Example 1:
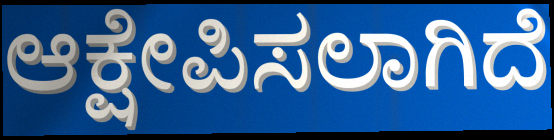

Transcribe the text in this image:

ಆಕ್ಷೇಪಿಸಲಾಗಿದೆ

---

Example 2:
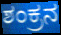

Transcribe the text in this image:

ಶಂಕ್ರನ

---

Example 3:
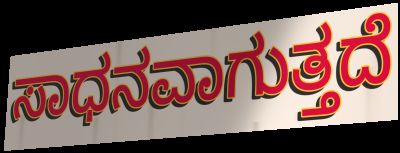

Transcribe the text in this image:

ಸಾಧನವಾಗುತ್ತದೆ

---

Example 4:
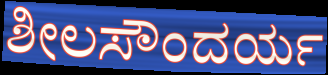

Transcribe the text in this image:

ಶೀಲಸೌಂದರ್ಯ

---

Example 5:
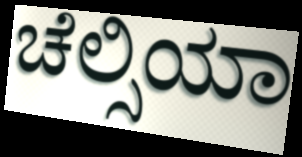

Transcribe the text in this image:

ಚೆಲ್ಸಿಯಾ